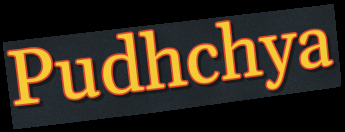
Pudhchya